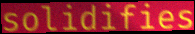
solidifies